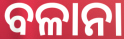
ବଳାନା